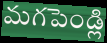
మగపెండ్లి